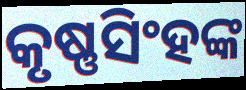
କୃଷ୍ଣସିଂହଙ୍କ